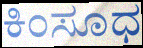
ಕಿಂಸೂಧ